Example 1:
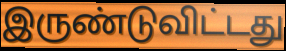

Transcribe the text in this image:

இருண்டுவிட்டது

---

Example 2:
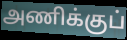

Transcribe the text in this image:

அணிக்குப்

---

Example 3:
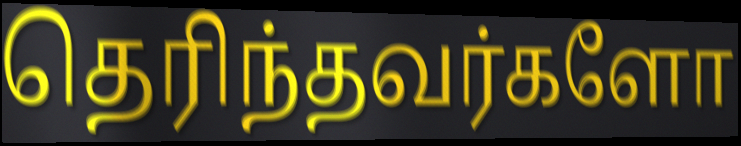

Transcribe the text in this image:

தெரிந்தவர்களோ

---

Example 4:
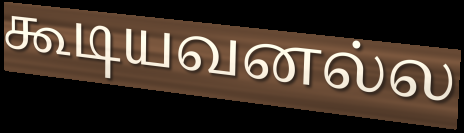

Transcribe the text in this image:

கூடியவனல்ல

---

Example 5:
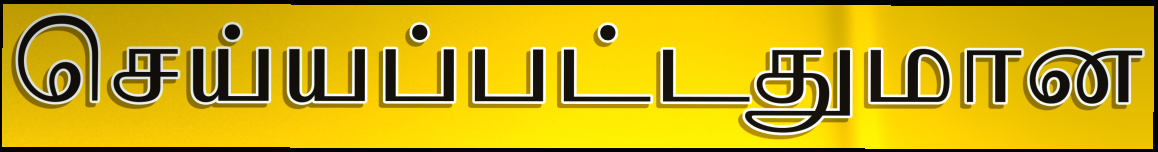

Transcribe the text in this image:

செய்யப்பட்டதுமான